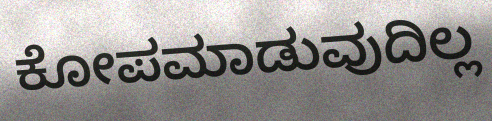
ಕೋಪಮಾಡುವುದಿಲ್ಲ